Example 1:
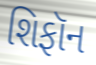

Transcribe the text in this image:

શિફૉન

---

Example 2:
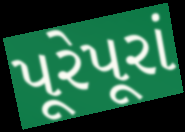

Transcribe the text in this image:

પૂરેપૂરાં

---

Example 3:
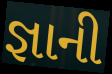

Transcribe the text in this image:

જ્ઞાની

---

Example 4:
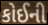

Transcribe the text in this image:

કોઈની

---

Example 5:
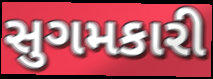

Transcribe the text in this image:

સુગમકારી